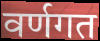
वर्णगत